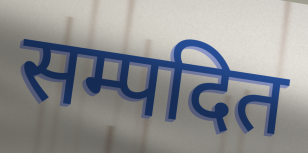
सम्पदित